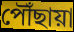
পৌঁছায়া